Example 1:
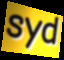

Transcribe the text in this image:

syd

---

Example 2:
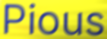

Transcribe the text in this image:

Pious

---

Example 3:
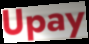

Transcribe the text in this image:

Upay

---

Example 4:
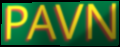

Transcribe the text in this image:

PAVN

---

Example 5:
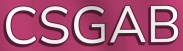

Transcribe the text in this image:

CSGAB